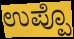
ಉಪ್ಪೊ